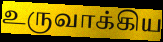
உருவாக்கிய